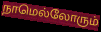
நாமெல்லோரும்